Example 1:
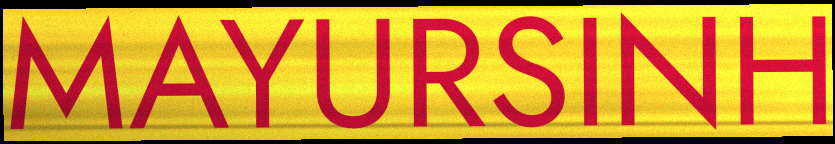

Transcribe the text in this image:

MAYURSINH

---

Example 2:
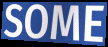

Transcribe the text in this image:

SOME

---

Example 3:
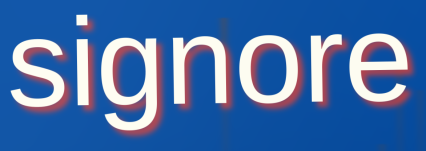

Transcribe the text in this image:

signore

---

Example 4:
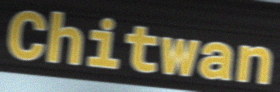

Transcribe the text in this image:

Chitwan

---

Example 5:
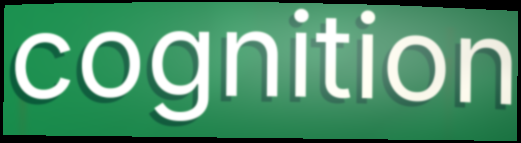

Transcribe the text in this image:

cognition